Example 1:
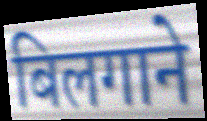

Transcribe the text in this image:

बिलगाने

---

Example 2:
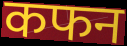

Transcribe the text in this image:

कफन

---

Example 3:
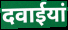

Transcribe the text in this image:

दवाईयां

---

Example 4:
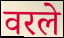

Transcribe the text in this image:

वरले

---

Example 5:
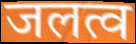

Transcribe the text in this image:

जलत्व